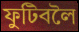
ফুটিবলৈ